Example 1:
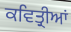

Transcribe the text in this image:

ਕਵਿਤ੍ਰੀਆਂ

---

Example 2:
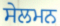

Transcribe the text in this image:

ਸੇਲਮਨ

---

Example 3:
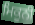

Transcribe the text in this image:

ਮਿਕੂਨੀ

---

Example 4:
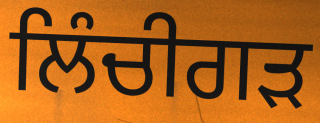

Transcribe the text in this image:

ਲਿੰਚੀਗੜ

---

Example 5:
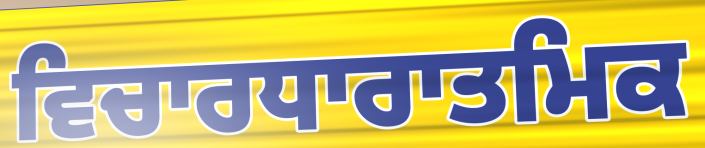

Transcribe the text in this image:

ਵਿਚਾਰਧਾਰਾਤਮਿਕ